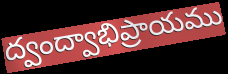
ద్వంద్వాభిప్రాయము